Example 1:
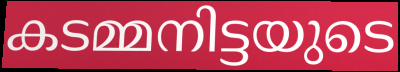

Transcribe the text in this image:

കടമ്മനിട്ടയുടെ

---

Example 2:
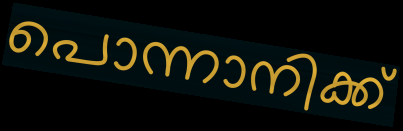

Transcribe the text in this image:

പൊന്നാനിക്ക്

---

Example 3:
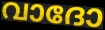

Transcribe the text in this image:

വാദോ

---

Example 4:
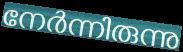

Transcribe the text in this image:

നേർന്നിരുന്നു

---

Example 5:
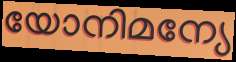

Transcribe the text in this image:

യോനിമന്യേ